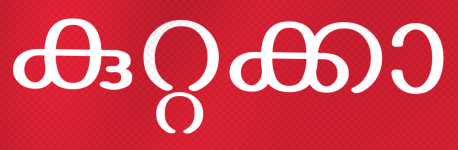
കുറ്റക്കാ